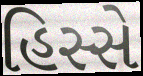
હિસ્સે